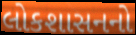
લોકશાસનનો